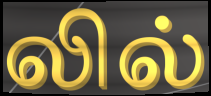
லில்